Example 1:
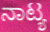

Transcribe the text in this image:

ನಾಟ್ಯ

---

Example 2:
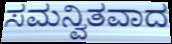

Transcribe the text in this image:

ಸಮನ್ವಿತವಾದ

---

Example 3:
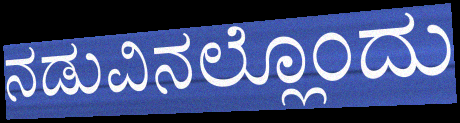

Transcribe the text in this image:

ನಡುವಿನಲ್ಲೊಂದು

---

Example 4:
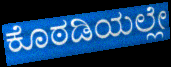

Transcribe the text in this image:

ಕೊಠಡಿಯಲ್ಲೇ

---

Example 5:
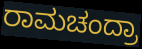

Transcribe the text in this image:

ರಾಮಚಂದ್ರಾ